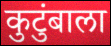
कुटुंबाला